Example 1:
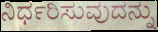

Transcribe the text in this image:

ನಿರ್ಧರಿಸುವುದನ್ನು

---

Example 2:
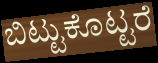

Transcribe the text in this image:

ಬಿಟ್ಟುಕೊಟ್ಟರೆ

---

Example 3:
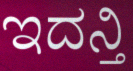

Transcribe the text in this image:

ಇದನ್ತಿ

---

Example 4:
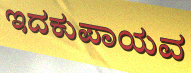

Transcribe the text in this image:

ಇದಕುಪಾಯವ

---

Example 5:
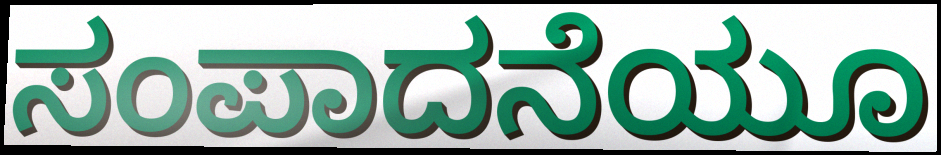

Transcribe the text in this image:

ಸಂಪಾದನೆಯೂ